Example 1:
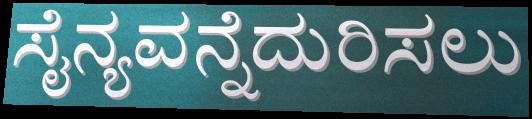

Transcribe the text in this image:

ಸೈನ್ಯವನ್ನೆದುರಿಸಲು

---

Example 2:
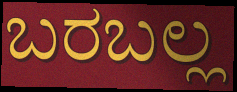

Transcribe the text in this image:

ಬರಬಲ್ಲ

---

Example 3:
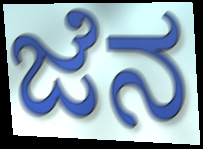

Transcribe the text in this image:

ಜೆನ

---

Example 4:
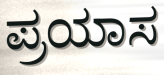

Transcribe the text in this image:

ಪ್ರಯಾಸ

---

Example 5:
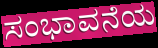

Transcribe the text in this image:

ಸಂಭಾವನೆಯ